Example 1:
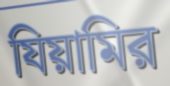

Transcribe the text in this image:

যিয়ামির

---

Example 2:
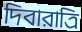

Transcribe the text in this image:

দিবারাত্রি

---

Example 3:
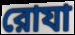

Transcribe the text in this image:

রোযা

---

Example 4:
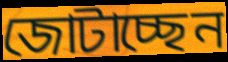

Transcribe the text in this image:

জোটাচ্ছেন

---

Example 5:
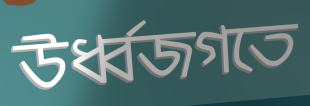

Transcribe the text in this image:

উর্ধ্বজগতে